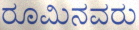
ರೂಮಿನವರು